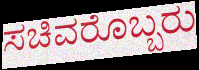
ಸಚಿವರೊಬ್ಬರು